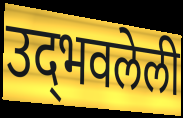
उद्‌भवलेली